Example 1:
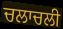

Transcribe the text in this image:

ਚਲਾਚਲੀ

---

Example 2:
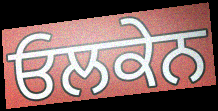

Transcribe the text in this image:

ਓਲਕੇਨ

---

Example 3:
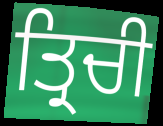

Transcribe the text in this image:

ਤ੍ਰਿਚੀ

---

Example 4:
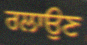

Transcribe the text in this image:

ਰਲਾਉਣ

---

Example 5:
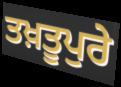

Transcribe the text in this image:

ਤਖ਼ਤੂਪੁਰੇ